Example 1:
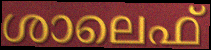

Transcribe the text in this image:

ശാലെഫ്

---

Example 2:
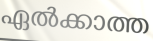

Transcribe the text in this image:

ഏൽക്കാത്ത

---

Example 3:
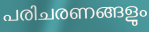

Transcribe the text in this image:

പരിചരണങ്ങളും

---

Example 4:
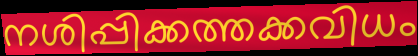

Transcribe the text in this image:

നശിപ്പിക്കത്തക്കവിധം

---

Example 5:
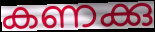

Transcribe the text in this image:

കണക്കു